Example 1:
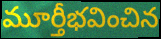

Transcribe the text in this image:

మూర్తీభవించిన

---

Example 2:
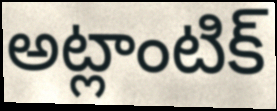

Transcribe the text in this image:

అట్లాంటిక్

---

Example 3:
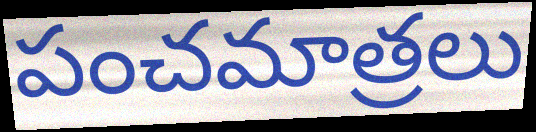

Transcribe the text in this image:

పంచమాత్రలు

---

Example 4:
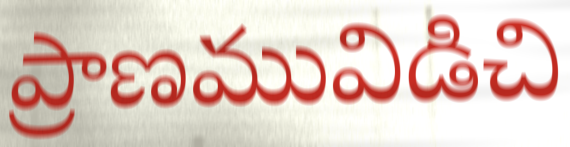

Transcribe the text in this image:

ప్రాణమువిడిచి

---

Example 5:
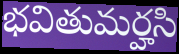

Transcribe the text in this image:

భవితుమర్హసి